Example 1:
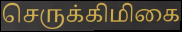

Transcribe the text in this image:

செருக்கிமிகை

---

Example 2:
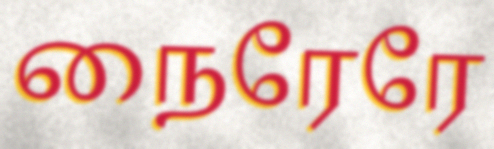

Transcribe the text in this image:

நைரேரே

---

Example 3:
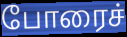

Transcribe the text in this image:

போரைச்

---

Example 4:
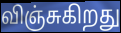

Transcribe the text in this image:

விஞ்சுகிறது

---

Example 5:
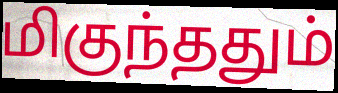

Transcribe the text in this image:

மிகுந்ததும்